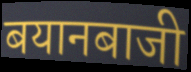
बयानबाजी